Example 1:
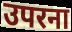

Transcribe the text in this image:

उपरना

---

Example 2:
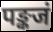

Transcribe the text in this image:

पङ्कजं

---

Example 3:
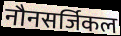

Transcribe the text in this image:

नौनसर्जिकल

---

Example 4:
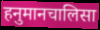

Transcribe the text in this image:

हनुमानचालिसा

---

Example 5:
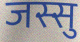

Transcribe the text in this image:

जस्सु